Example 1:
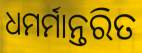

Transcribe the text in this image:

ଧମର୍ମାନ୍ତରିତ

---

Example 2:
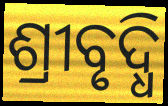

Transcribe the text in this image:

ଶ୍ରୀବୃଦ୍ଧି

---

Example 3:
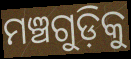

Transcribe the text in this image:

ମଞ୍ଚଗୁଡ଼ିକୁ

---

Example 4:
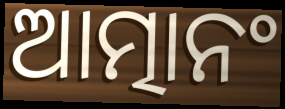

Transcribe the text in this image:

ଆତ୍ମାନଂ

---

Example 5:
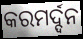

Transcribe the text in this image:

କରମର୍ଦ୍ଦନ